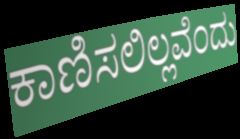
ಕಾಣಿಸಲಿಲ್ಲವೆಂದು